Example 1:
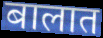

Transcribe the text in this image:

बालात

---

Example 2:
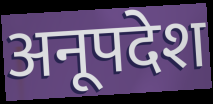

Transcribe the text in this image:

अनूपदेश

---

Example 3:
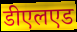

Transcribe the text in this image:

डीएलएड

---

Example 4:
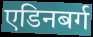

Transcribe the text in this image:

एडिनबर्ग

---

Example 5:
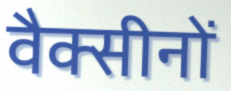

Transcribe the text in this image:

वैक्सीनों